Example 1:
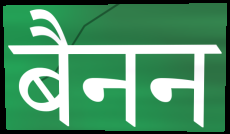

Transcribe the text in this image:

बैनन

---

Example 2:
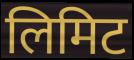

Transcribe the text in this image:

लिमिट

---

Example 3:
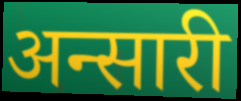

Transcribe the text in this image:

अन्सारी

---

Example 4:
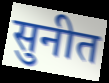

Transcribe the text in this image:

सुनीत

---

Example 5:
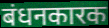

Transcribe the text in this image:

बंधनकारक